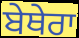
ਬੇਥੇਰਾ